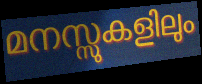
മനസ്സുകളിലും